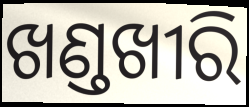
ଖଣ୍ଡଖୀରି